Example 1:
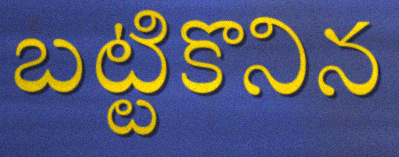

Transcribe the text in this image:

బట్టికొనిన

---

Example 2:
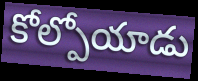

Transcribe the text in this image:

కోల్పోయాడు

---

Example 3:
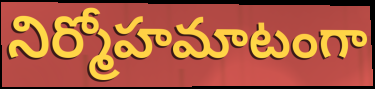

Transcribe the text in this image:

నిర్మోహమాటంగా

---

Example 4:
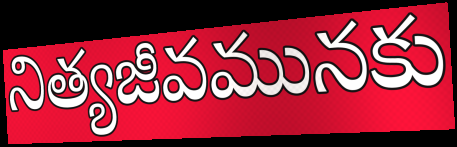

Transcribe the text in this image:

నిత్యజీవమునకు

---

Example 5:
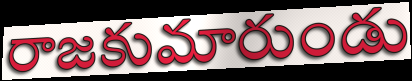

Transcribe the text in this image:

రాజకుమారుండు